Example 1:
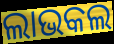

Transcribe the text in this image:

ଲାଭକଲ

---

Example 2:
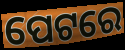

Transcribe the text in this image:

ପେଟରେ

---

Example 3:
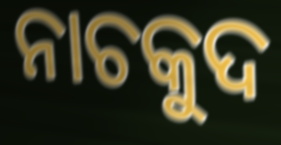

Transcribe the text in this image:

ନାଚକୁଦ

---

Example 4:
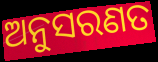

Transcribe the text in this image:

ଅନୁସରଣତ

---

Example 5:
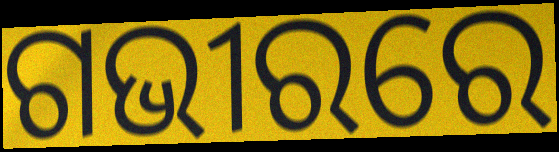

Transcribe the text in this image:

ଗଭୀରରେ